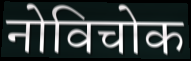
नोविचोक